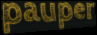
pauper